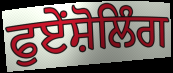
ਫੁਏਂਸ਼ੋਲਿੰਗ